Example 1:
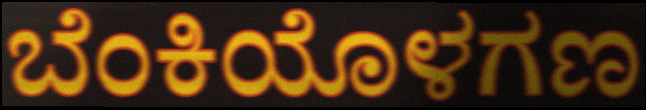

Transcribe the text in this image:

ಬೆಂಕಿಯೊಳಗಣ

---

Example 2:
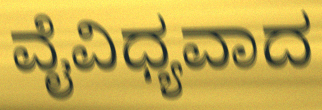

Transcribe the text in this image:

ವೈವಿಧ್ಯವಾದ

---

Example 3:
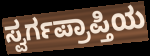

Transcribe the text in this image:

ಸ್ವರ್ಗಪ್ರಾಪ್ತಿಯ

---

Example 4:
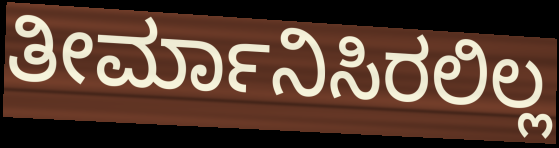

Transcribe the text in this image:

ತೀರ್ಮಾನಿಸಿರಲಿಲ್ಲ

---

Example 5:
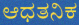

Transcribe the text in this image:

ಆಧತನಿಕ